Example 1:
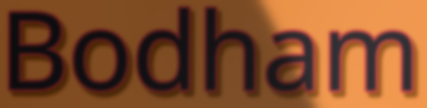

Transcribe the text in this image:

Bodham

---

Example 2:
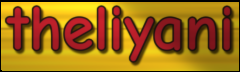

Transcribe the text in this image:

theliyani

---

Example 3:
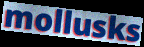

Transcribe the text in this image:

mollusks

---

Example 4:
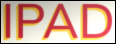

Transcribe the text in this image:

IPAD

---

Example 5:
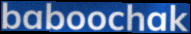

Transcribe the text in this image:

baboochak